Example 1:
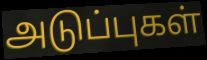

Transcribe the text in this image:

அடுப்புகள்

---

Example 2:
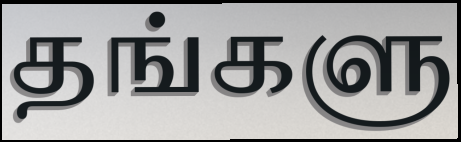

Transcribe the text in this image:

தங்களு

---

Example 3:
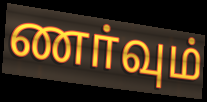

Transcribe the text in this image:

ணர்வும்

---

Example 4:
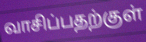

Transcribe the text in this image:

வாசிப்பதற்குள்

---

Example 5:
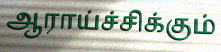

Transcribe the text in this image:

ஆராய்ச்சிக்கும்